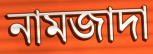
নামজাদা